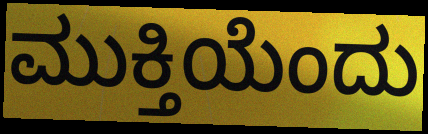
ಮುಕ್ತಿಯೆಂದು